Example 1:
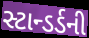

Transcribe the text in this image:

સ્ટાન્ડર્ડની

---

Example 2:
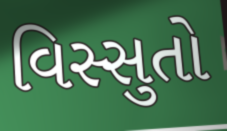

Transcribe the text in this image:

વિસ્સુતો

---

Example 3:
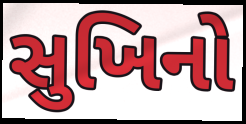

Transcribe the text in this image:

સુખિનો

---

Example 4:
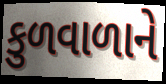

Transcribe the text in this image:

કુળવાળાને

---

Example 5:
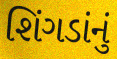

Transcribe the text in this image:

શિંગડાંનું